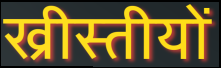
ख्रीस्तीयों